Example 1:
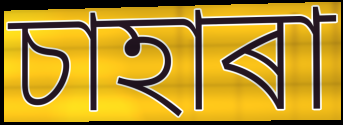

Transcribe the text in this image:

চাহাৰা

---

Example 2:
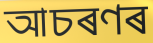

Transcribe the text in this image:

আচৰণৰ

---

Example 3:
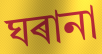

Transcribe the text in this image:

ঘৰানা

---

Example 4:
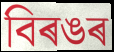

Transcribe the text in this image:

বিৰঙৰ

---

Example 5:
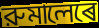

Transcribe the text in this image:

ৰুমালেৰে